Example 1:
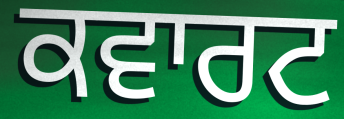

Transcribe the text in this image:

ਕਵਾਰਟ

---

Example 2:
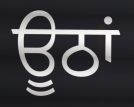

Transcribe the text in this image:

ਊਠਾਂ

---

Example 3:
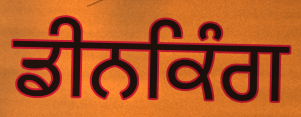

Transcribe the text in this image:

ਡੀਨਕਿੰਗ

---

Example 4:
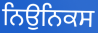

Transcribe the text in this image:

ਨਿਉਨਿਕਸ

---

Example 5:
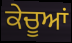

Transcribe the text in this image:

ਕੇਚੂਆਂ